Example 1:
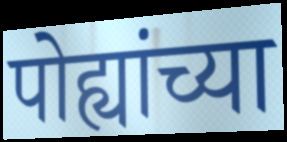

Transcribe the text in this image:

पोह्यांच्या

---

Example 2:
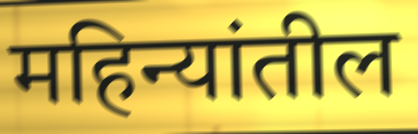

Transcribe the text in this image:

महिन्यांतील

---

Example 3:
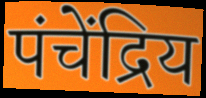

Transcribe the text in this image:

पंचेंद्रिय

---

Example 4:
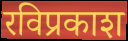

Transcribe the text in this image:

रविप्रकाश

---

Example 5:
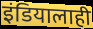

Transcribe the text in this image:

इंडियालाही